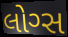
લોગ્સ